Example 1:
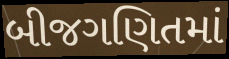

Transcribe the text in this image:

બીજગણિતમાં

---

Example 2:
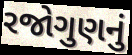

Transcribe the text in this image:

રજોગુણનું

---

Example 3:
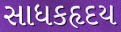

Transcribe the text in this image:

સાધકહૃદય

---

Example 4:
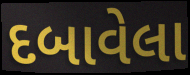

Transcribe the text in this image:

દબાવેલા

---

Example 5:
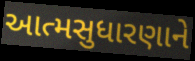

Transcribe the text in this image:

આત્મસુધારણાને